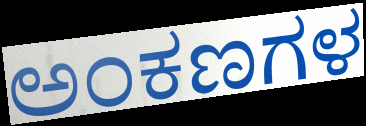
ಅಂಕಣಗಳ